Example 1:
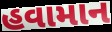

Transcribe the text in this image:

હવામાન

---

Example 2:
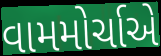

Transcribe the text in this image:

વામમોર્ચાએ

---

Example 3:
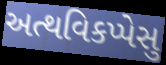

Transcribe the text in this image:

અત્થવિકપ્પેસુ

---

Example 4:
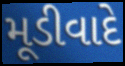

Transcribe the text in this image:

મૂડીવાદે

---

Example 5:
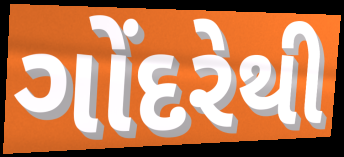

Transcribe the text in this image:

ગોંદરેથી